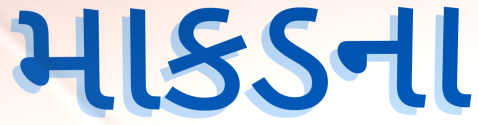
માકડના